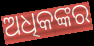
ଅଧିକଙ୍କର